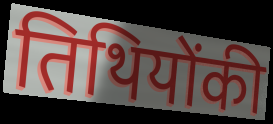
तिथियोंकी